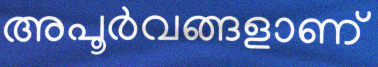
അപൂർവങ്ങളാണ്